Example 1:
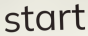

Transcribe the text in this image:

start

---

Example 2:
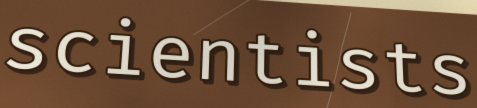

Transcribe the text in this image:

scientists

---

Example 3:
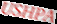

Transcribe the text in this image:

USHPA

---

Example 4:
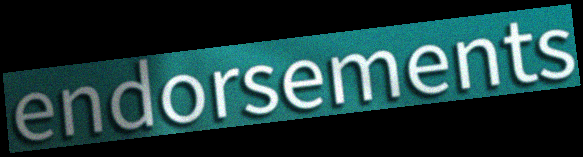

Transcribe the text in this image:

endorsements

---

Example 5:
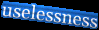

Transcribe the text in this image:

uselessness